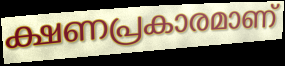
ക്ഷണപ്രകാരമാണ്